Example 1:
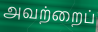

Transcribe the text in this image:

அவற்றைப்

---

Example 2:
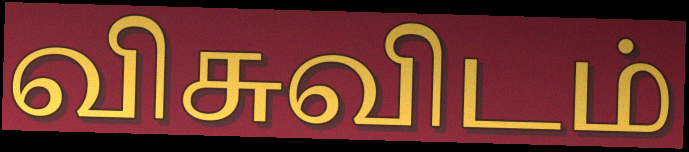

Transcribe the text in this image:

விசுவிடம்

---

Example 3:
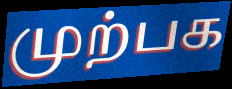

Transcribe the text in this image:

முற்பக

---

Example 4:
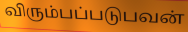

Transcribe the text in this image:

விரும்பப்படுபவன்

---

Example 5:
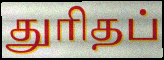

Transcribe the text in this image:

துரிதப்